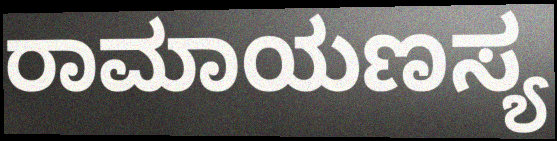
ರಾಮಾಯಣಸ್ಯ